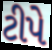
ટીપે